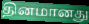
தினமானது